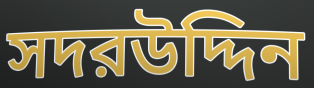
সদরউদ্দিন